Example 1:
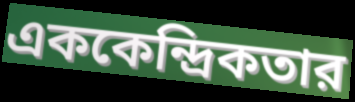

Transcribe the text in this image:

এককেন্দ্রিকতার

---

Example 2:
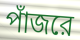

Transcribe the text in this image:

পাঁজরে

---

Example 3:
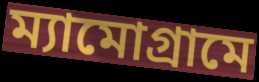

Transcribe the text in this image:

ম্যামোগ্রামে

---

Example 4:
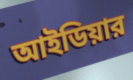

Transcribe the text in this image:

আইডিয়ার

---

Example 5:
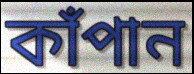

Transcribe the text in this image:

কাঁপান